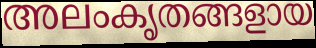
അലംകൃതങ്ങളായ